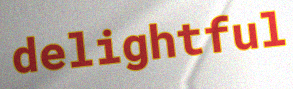
delightful